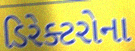
ડિરેક્ટરોના